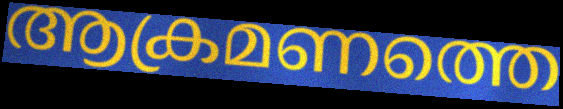
ആക്രമണത്തെ